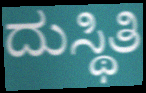
ದುಸ್ಥಿತಿ